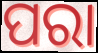
ପରା